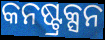
କନଷ୍ଟ୍ରକ୍ସନ